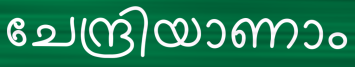
ചേന്ദ്രിയാണാം